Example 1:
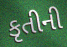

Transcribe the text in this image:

કૃતીની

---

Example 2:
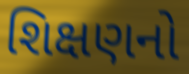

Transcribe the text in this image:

શિક્ષણનો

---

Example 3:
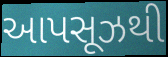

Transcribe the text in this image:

આપસૂઝથી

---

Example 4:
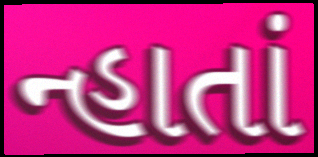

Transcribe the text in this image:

ન્હાતાં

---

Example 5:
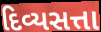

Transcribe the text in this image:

દિવ્યસત્તા